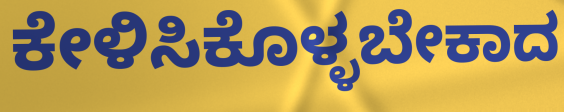
ಕೇಳಿಸಿಕೊಳ್ಳಬೇಕಾದ